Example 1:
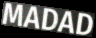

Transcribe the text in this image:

MADAD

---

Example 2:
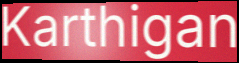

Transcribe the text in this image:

Karthigan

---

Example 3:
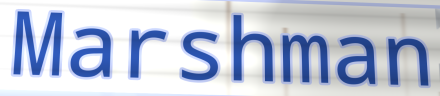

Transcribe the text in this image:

Marshman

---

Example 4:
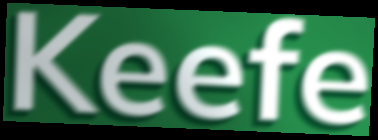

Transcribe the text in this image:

Keefe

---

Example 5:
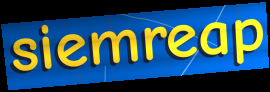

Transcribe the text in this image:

siemreap